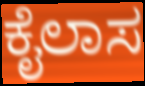
ಕೈಲಾಸ